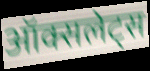
ऑक्सलेट्स